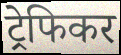
ट्रेफिकर